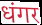
धंगर